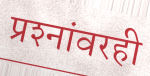
प्रश्नांवरही